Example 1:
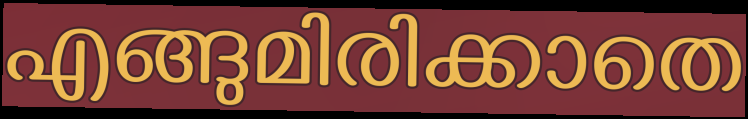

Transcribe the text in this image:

എങ്ങുമിരിക്കാതെ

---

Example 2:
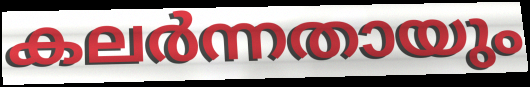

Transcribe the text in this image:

കലർന്നതായും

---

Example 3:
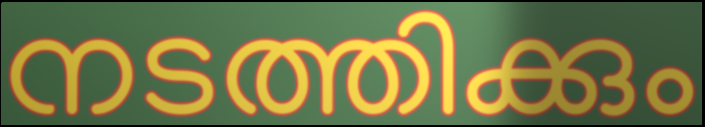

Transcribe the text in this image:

നടത്തിക്കും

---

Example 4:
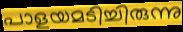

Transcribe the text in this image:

പാളയമടിച്ചിരുന്നു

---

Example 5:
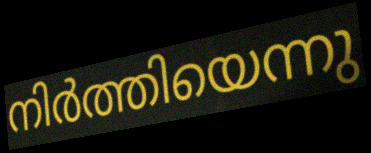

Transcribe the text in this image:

നിർത്തിയെന്നു